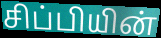
சிப்பியின்